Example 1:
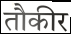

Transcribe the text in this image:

तौकीर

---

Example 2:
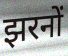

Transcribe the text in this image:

झरनों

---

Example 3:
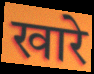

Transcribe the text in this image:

खारे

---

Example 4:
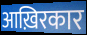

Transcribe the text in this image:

आख़िरकार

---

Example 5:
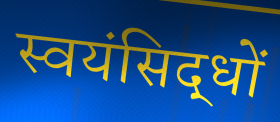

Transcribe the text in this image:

स्वयंसिद्धों